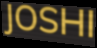
JOSHI